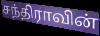
சந்திராவின்